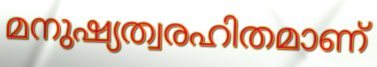
മനുഷ്യത്വരഹിതമാണ്